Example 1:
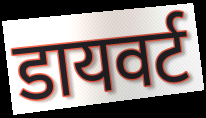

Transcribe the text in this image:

डायवर्ट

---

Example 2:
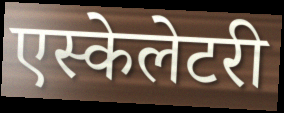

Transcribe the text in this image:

एस्केलेटरी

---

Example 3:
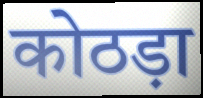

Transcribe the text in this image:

कोठड़ा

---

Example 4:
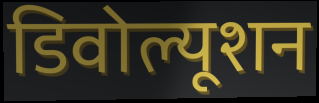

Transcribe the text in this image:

डिवोल्यूशन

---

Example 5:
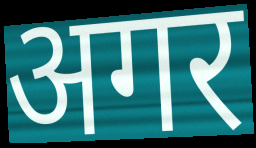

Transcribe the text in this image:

अगर